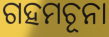
ଗହମଚୂନା